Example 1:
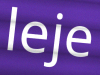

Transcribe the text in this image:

leje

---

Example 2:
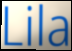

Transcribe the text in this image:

Lila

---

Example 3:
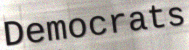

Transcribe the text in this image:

Democrats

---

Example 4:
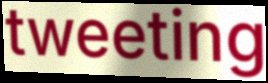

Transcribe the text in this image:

tweeting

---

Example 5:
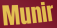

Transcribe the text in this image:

Munir